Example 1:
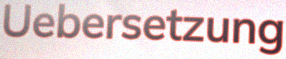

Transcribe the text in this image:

Uebersetzung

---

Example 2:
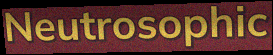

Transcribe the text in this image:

Neutrosophic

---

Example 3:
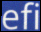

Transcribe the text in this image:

efi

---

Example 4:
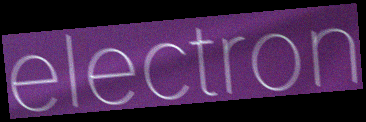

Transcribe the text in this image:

electron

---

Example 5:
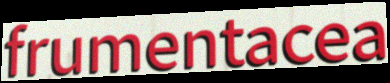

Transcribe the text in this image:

frumentacea